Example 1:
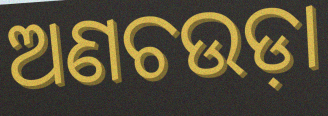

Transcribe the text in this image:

ଅଣଚଉଡ଼ା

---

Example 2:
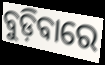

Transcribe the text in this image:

ବୁଡ଼ିବାରେ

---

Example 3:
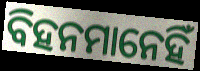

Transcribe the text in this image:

ବିହନମାନେହିଁ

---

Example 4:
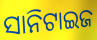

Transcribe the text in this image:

ସାନିଟାଇଜ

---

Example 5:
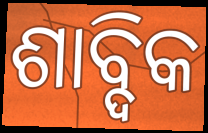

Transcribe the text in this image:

ଶାବ୍ଦିକ